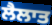
ਲੈਲਾਤ